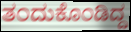
ತಂದುಕೊಂಡಿದ್ದ